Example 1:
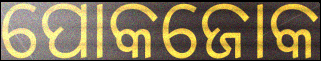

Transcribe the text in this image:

ପୋକଜୋକ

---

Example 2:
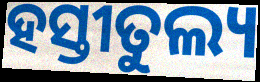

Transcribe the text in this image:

ହସ୍ତୀତୁଲ୍ୟ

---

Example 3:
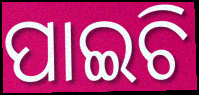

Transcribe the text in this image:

ପାଇଚି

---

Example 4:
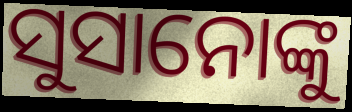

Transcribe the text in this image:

ସୁସାନୋଙ୍କୁ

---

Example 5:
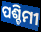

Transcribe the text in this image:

ପଶ୍ଚିମୀ